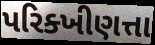
પરિક્ખીણત્તા